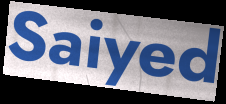
Saiyed